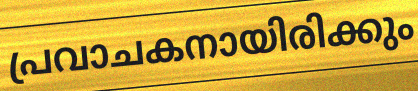
പ്രവാചകനായിരിക്കും